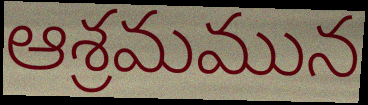
ఆశ్రమమున